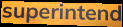
superintend